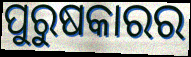
ପୁରୁଷକାରର